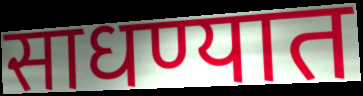
साधण्यात